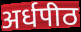
अर्धपीठ